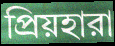
প্রিয়হারা